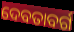
ଦେବତାବର୍ଗ